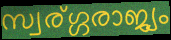
സ്വര്ഗ്ഗരാജ്യം